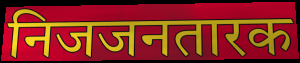
निजजनतारक